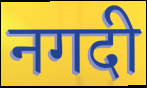
नगदी